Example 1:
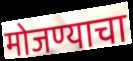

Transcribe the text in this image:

मोजण्याचा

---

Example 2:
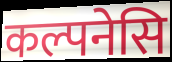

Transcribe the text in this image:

कल्पनेसि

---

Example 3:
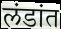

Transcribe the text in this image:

लंडांत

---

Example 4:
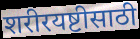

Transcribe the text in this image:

शरीरयष्टीसाठी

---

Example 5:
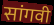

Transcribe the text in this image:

सांगवी